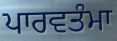
ਪਾਰਵਤੰਮਾ